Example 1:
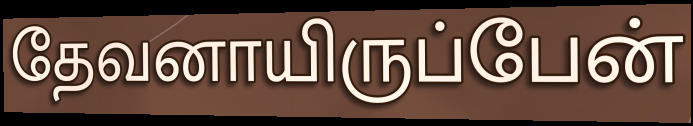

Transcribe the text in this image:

தேவனாயிருப்பேன்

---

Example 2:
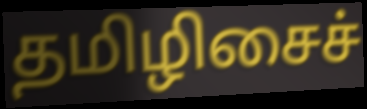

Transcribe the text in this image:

தமிழிசைச்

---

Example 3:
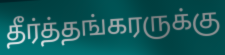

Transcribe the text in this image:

தீர்த்தங்கரருக்கு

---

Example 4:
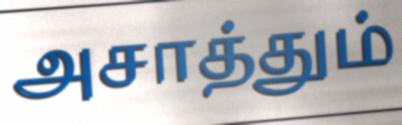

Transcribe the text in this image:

அசாத்தும்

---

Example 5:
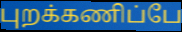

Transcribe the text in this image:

புறக்கணிப்பே